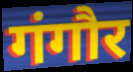
गंगौर